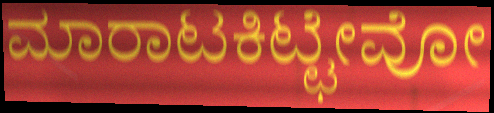
ಮಾರಾಟಕಿಟ್ಟೇವೋ